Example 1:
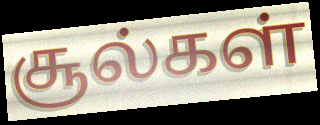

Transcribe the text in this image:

சூல்கள்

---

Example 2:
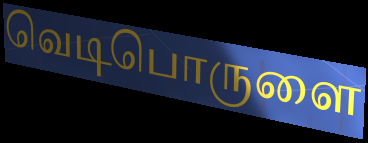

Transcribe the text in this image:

வெடிபொருளை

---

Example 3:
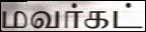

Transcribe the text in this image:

மவர்கட்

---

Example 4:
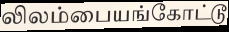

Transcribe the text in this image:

லிலம்பையங்கோட்டூ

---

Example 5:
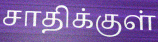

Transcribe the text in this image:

சாதிக்குள்